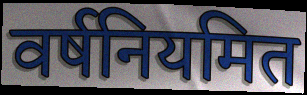
वर्षनियमित